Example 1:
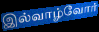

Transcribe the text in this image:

இல்வாழ்வோர்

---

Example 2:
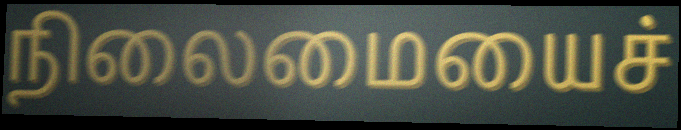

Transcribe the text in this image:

நிலைமையைச்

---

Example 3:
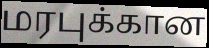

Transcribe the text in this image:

மரபுக்கான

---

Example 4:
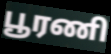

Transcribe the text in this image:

பூரணி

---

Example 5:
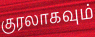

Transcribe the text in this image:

குரலாகவும்